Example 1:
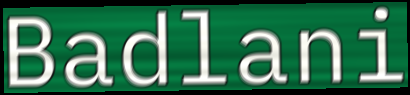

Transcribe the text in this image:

Badlani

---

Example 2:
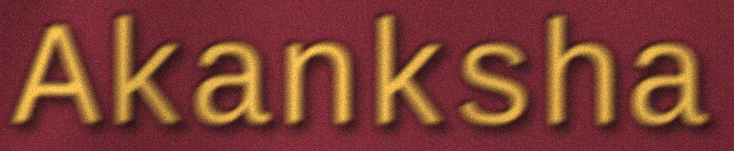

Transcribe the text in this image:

Akanksha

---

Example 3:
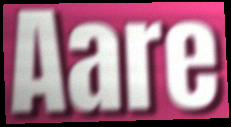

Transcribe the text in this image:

Aare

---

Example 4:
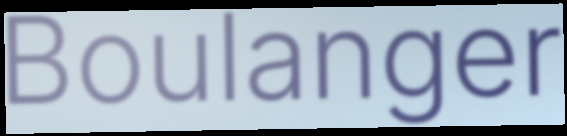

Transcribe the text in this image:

Boulanger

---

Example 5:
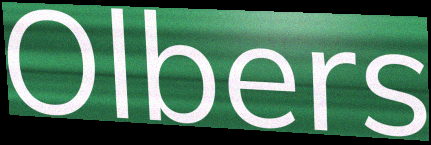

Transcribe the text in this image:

Olbers